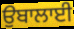
ਉਬਾਲਾਈ